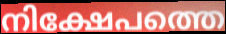
നിക്ഷേപത്തെ